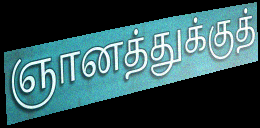
ஞானத்துக்குத்